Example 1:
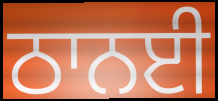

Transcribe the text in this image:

ਠਾਨਈ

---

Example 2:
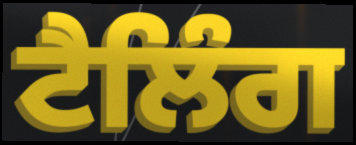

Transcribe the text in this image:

ਟੈਲਿੰਗ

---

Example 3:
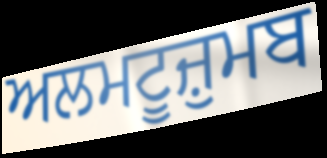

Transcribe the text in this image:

ਅਲਮਟੂਜ਼ੁਮਬ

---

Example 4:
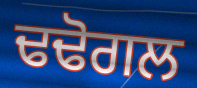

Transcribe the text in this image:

ਢਢੋਗਲ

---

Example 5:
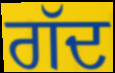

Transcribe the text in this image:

ਗੱਦ